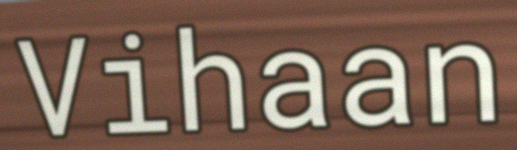
Vihaan